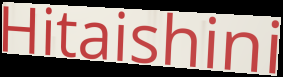
Hitaishini